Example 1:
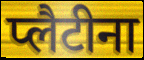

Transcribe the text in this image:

प्लैटीना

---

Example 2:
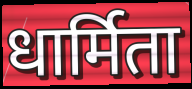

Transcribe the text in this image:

धार्मिता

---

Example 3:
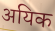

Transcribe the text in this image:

अयिक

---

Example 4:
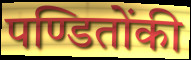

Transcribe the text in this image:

पण्डितोंकी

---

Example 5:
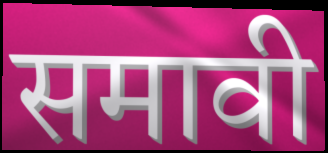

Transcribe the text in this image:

समावी